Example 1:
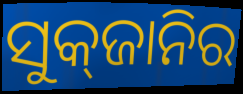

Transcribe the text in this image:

ସୁକ୍‌ଜାନିର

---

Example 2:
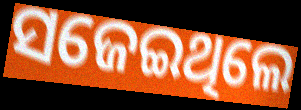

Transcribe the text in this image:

ସଜେଇଥିଲେ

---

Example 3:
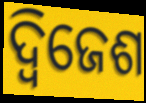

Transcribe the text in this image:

ଦ୍ୱିଜେଶ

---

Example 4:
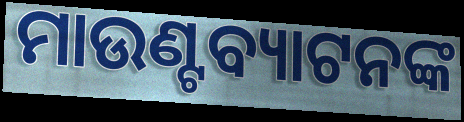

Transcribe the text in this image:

ମାଉଣ୍ଟବ୍ୟାଟନଙ୍କ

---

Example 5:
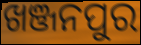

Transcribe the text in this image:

ଖଞ୍ଜନପୁର